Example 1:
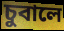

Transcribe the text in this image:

চুবালে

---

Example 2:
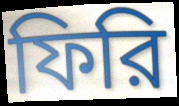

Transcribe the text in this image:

ফিরি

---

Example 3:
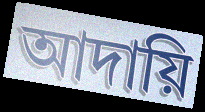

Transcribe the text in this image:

আদায়ি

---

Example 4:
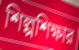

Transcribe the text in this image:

শিল্পশিক্ষার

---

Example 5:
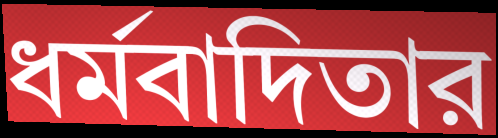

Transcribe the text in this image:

ধর্মবাদিতার